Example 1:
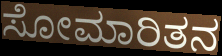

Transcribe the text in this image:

ಸೋಮಾರಿತನ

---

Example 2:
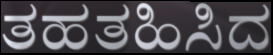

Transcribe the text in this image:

ತಹತಹಿಸಿದ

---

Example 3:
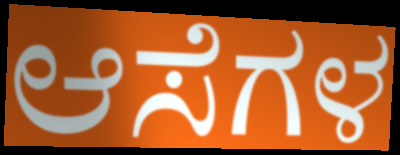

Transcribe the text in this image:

ಆಸೆಗಳ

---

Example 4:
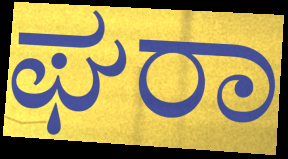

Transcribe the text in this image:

ಘರಾ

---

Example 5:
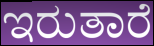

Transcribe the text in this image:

ಇರುತಾರೆ